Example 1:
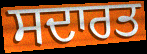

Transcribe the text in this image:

ਸਦਾਰਤ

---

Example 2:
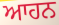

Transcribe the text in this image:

ਆਹਨ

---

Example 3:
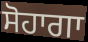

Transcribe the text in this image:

ਸੋਹਾਗਾ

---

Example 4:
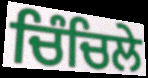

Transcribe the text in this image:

ਚਿੰਚਿਲੇ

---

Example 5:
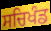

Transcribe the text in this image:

ਸਚਿਖੰਡ